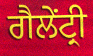
ਗੈਲੇਂਟ੍ਰੀ